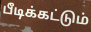
பீடிக்கட்டும்